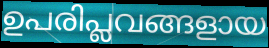
ഉപരിപ്ലവങ്ങളായ